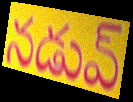
నడువ్